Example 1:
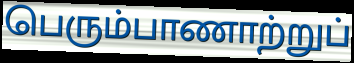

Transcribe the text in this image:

பெரும்பாணாற்றுப்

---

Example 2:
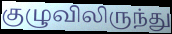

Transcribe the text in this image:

குழுவிலிருந்து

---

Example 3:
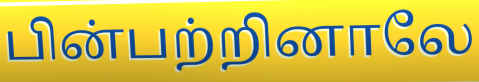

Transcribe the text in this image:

பின்பற்றினாலே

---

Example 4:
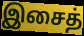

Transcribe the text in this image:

இசைத்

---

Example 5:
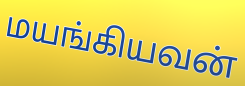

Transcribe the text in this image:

மயங்கியவன்